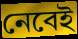
নেবেই